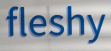
fleshy